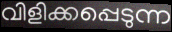
വിളിക്കപ്പെടുന്ന